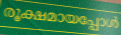
രൂക്ഷമായപ്പോൾ